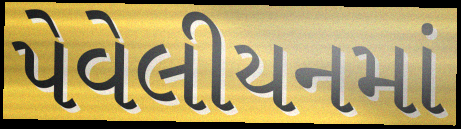
પેવેલીયનમાં